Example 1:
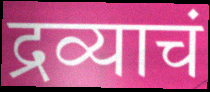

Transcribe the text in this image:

द्रव्याचं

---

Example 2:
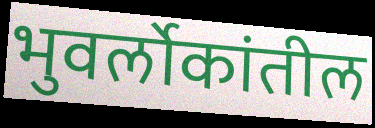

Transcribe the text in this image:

भुवर्लोकांतील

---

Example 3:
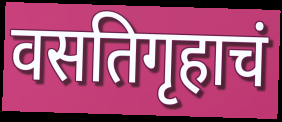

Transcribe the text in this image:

वसतिगृहाचं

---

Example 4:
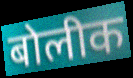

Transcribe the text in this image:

बोलीक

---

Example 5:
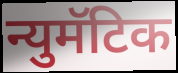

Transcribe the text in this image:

न्युमॅटिक